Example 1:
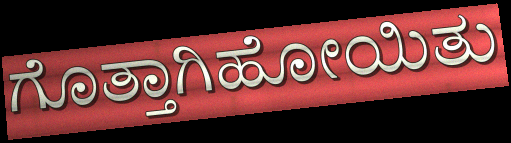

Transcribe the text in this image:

ಗೊತ್ತಾಗಿಹೋಯಿತು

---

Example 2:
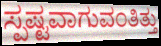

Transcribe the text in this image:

ಸ್ಪಷ್ಟವಾಗುವಂತಿತ್ತು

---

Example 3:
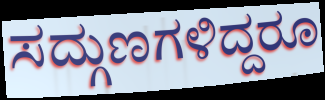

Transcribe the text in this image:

ಸದ್ಗುಣಗಳಿದ್ದರೂ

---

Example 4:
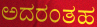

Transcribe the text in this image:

ಅದರಂತಹ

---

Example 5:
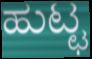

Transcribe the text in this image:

ಹುಟ್ಟ